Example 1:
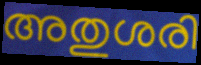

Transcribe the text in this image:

അതുശരി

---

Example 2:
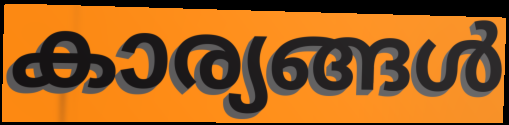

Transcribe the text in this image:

കാര്യങ്ങൾ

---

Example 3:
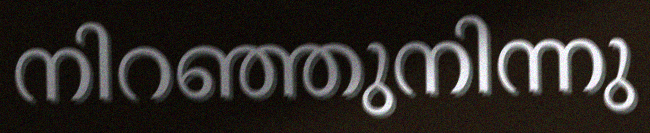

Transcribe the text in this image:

നിറഞ്ഞുനിന്നു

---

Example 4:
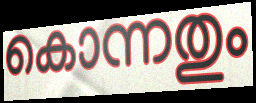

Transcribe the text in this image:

കൊന്നതും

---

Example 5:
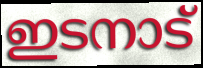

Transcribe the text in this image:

ഇടനാട്